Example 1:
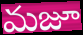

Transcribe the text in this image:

మజూ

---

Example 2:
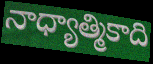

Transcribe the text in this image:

నాధ్యాత్మికాది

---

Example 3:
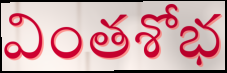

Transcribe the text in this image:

వింతశోభ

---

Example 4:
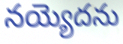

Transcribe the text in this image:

నయ్యెదను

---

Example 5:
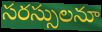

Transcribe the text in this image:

సరస్సులనూ